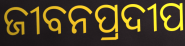
ଜୀବନପ୍ରଦୀପ